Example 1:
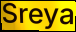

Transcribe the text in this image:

Sreya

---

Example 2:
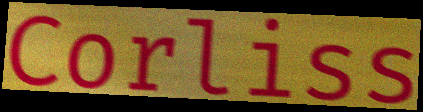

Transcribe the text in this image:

Corliss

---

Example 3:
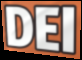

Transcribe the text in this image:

DEI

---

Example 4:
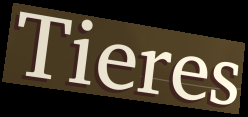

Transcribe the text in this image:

Tieres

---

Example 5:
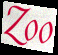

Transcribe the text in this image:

Zoo